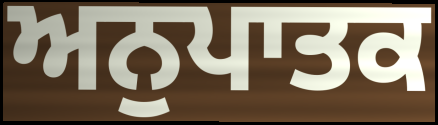
ਅਨੁਪਾਤਕ